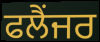
ਫਲੈਂਜਰ